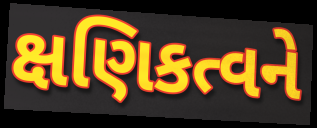
ક્ષણિકત્વને